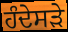
ਹੰਦੇਸੜੇ